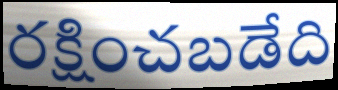
రక్షించబడేది